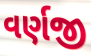
વર્ણજી